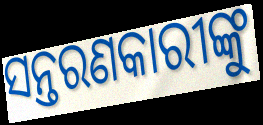
ସନ୍ତରଣକାରୀଙ୍କୁ